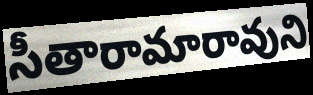
సీతారామారావుని